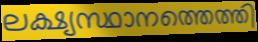
ലക്ഷ്യസ്ഥാനത്തെത്തി